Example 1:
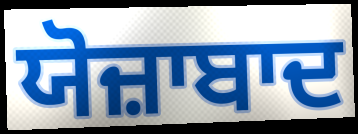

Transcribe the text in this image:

ਯੋਜ਼ਾਬਾਦ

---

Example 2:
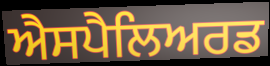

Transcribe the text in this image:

ਐਸਪੈਲਿਅਰਡ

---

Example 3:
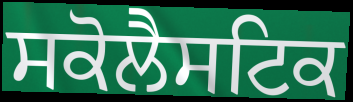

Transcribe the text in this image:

ਸਕੋਲੈਸਟਿਕ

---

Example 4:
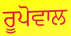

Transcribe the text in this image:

ਰੂਪੋਵਾਲ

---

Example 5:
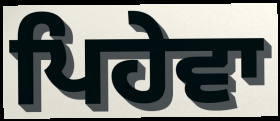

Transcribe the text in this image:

ਪਿਹੇਵਾ